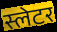
स्लेटर